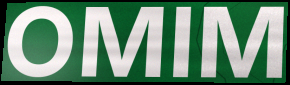
OMIM